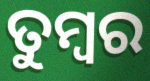
ତୁମ୍ବର